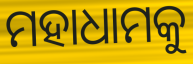
ମହାଧାମକୁ